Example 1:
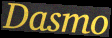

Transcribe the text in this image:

Dasmo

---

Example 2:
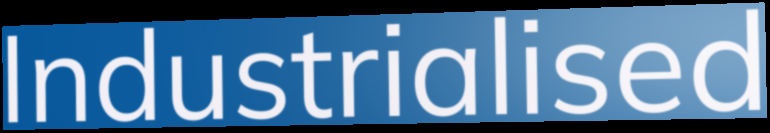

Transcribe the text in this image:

Industrialised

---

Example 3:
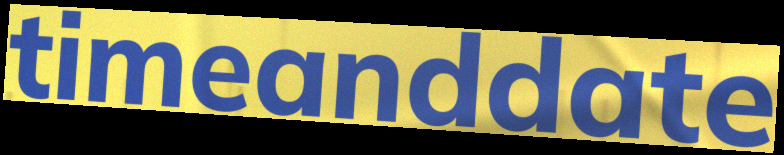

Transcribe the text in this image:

timeanddate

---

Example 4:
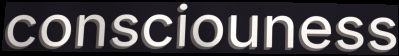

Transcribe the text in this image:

consciouness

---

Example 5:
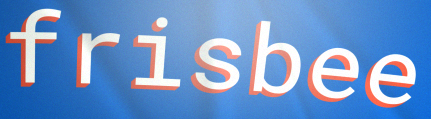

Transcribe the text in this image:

frisbee